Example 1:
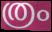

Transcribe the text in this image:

ത്രം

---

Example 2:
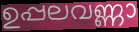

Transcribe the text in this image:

ഉപ്പലവണ്ണാ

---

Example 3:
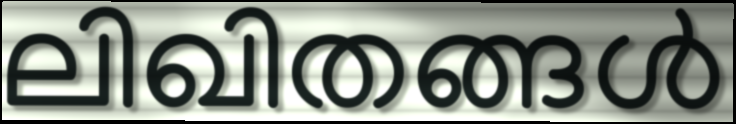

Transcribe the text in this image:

ലിഖിതങ്ങൾ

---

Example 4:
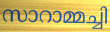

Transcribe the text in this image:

സാറാമ്മച്ചി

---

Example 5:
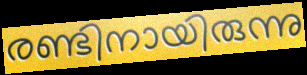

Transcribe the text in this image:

രണ്ടിനായിരുന്നു